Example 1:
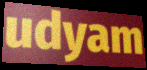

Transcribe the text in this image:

udyam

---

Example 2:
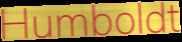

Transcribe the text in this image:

Humboldt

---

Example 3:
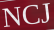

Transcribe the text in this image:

NCJ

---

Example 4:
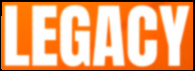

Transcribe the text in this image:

LEGACY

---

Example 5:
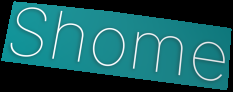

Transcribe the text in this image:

Shome